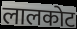
लालकोट